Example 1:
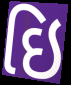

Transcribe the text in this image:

ઇિ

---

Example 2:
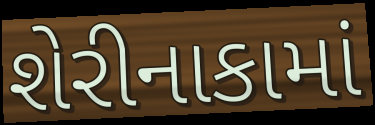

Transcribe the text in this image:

શેરીનાકામાં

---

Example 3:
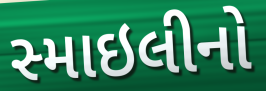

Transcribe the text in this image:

સ્માઇલીનો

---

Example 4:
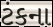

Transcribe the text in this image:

ટંકના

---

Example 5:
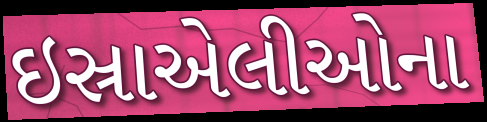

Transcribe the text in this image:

ઇસ્રાએલીઓના